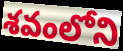
శవంలోని